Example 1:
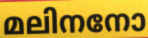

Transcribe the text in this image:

മലിനനോ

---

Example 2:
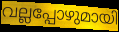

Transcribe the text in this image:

വല്ലപ്പോഴുമായി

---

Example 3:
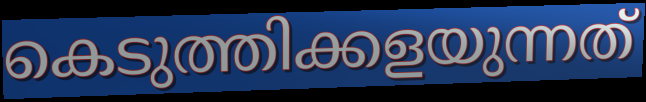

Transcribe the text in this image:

കെടുത്തിക്കളയുന്നത്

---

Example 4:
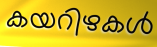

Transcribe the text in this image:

കയറിഴകൾ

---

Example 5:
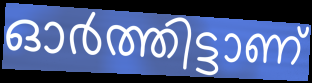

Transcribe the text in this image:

ഓർത്തിട്ടാണ്